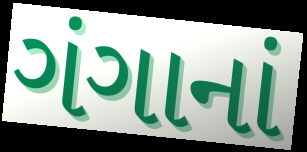
ગંગાનાં